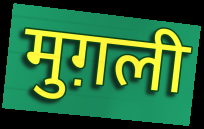
मुग़ली